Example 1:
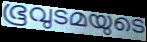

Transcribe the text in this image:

ഭൂവുടമയുടെ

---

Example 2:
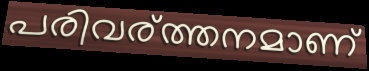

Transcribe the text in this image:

പരിവര്ത്തനമാണ്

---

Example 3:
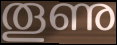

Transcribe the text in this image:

തൂണു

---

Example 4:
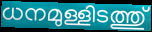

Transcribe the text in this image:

ധനമുള്ളിടത്തു്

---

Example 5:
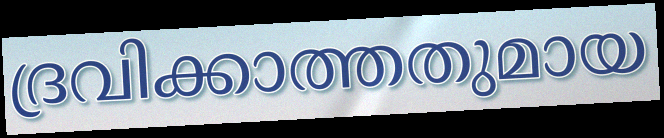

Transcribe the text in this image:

ദ്രവിക്കാത്തതുമായ